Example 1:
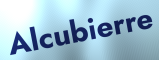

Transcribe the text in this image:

Alcubierre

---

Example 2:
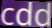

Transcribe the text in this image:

cdd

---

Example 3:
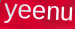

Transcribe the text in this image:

yeenu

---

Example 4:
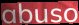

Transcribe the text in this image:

abuso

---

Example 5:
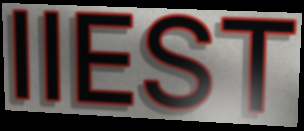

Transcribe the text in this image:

IIEST